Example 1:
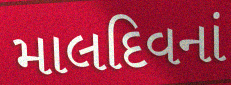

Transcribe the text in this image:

માલદિવનાં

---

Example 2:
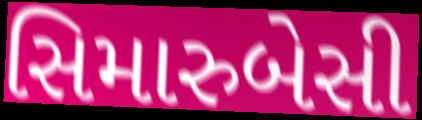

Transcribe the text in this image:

સિમારુબેસી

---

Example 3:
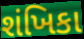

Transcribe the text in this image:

શંખિકા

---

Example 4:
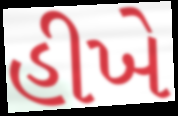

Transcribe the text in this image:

હીખે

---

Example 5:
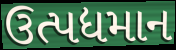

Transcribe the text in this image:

ઉત્પદ્યમાન